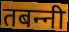
तबन्नी